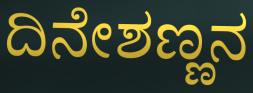
ದಿನೇಶಣ್ಣನ